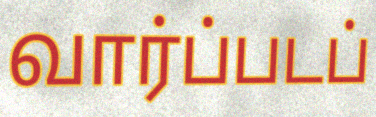
வார்ப்படப்